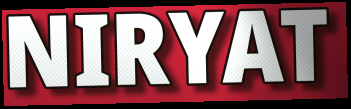
NIRYAT